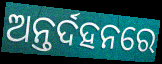
ଅନ୍ତର୍ଦହନରେ